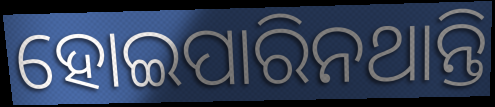
ହୋଇପାରିନଥାନ୍ତି